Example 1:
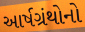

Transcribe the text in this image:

આર્ષગ્રંથોનો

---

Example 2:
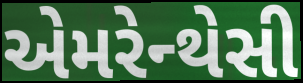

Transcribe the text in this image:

એમરેન્થેસી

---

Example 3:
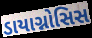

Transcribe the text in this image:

ડાયાગ્નોસિસ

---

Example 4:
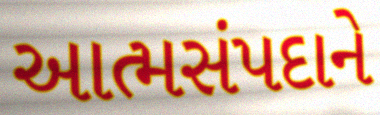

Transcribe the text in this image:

આત્મસંપદાને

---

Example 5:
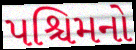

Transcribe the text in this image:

પશ્ચિમનો